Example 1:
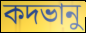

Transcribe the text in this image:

কদভানু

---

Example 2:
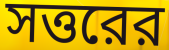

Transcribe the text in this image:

সত্তরের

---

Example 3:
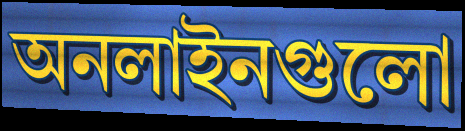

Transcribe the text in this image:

অনলাইনগুলো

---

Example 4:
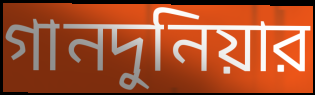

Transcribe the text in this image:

গানদুনিয়ার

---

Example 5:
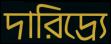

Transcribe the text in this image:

দারিদ্র্যে